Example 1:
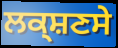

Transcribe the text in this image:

ਲਕ੍ਸ਼ਣਸੇ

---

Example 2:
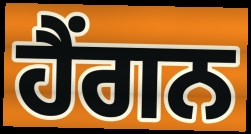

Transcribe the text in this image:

ਹੈਂਗਨ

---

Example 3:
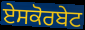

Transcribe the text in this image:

ਏਸਕੋਰਬੇਟ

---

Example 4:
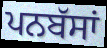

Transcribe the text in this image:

ਪਨਬੱਸਾਂ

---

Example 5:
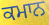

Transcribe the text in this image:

ਕਮਾਨ